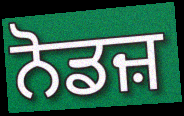
ਨੋਡਜ਼